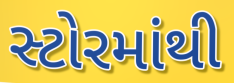
સ્ટોરમાંથી